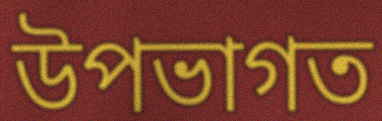
উপভাগত